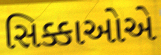
સિક્કાઓએ